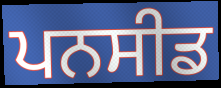
ਪਨਸੀਡ